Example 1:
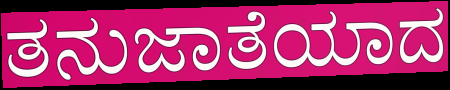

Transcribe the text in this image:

ತನುಜಾತೆಯಾದ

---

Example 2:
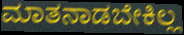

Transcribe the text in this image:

ಮಾತನಾಡಬೇಕಿಲ್ಲ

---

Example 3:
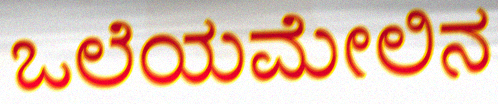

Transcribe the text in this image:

ಒಲೆಯಮೇಲಿನ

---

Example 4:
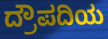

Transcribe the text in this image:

ದ್ರೌಪದಿಯ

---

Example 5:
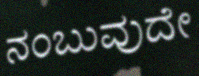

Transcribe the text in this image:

ನಂಬುವುದೇ